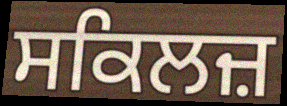
ਸਕਿਲਜ਼